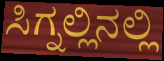
ಸಿಗ್ನಲ್ಲಿನಲ್ಲಿ